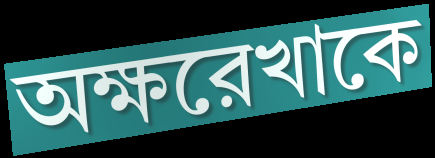
অক্ষরেখাকে